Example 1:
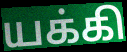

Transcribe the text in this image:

யக்கி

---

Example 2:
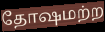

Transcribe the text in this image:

தோஷமற்ற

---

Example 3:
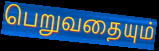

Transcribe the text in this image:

பெறுவதையும்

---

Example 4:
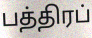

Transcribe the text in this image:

பத்திரப்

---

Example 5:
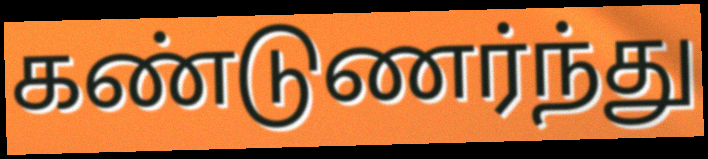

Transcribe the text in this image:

கண்டுணர்ந்து